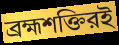
ব্রহ্মশক্তিরই